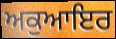
ਅਕੁਆਇਰ